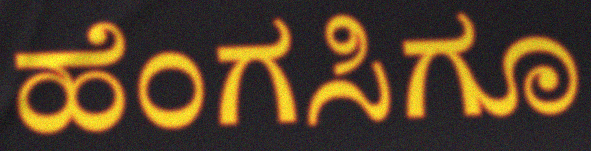
ಹೆಂಗಸಿಗೂ